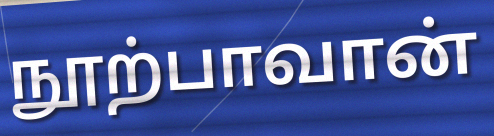
நூற்பாவான்